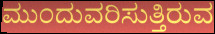
ಮುಂದುವರಿಸುತ್ತಿರುವ